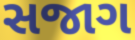
સજાગ